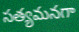
సత్యమనగా